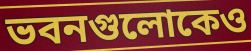
ভবনগুলোকেও